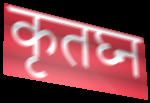
कृतघ्न